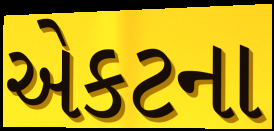
એકટના